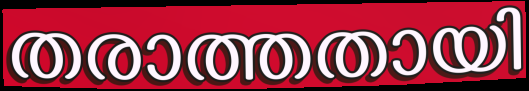
തരാത്തതായി